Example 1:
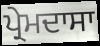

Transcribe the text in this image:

ਪ੍ਰੇਮਦਾਸਾ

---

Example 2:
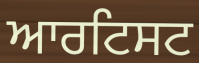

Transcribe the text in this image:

ਆਰਟਿਸਟ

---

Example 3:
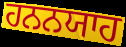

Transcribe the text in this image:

ਹਨਨਯਾਹ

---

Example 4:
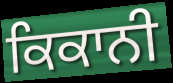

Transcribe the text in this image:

ਕਿਕਾਨੀ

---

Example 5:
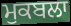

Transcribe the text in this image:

ਮੁਕਬਲਾ